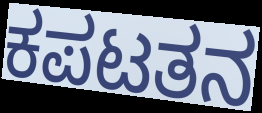
ಕಪಟತನ